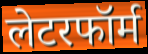
लेटरफॉर्म